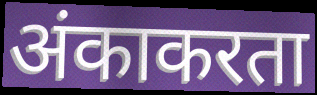
अंकाकरता